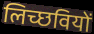
लिच्छवियों